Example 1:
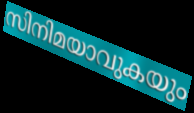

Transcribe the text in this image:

സിനിമയാവുകയും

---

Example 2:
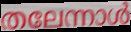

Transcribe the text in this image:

തലേന്നാൾ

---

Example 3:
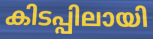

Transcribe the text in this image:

കിടപ്പിലായി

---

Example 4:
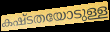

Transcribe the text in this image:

കഷ്ടതയോടുള്ള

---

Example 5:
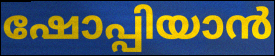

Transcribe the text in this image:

ഷോപ്പിയാൻ